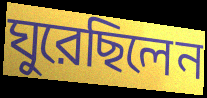
ঘুরেছিলেন